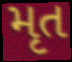
મૃત